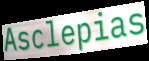
Asclepias